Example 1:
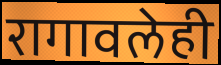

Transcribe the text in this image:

रागावलेही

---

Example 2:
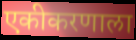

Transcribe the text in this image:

एकीकरणाला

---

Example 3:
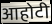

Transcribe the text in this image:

आहोटी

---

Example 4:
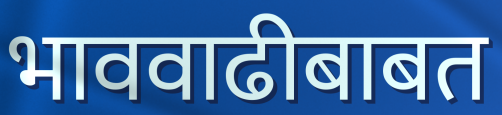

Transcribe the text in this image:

भाववाढीबाबत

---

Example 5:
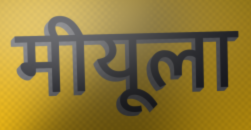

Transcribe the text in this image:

मीयूला